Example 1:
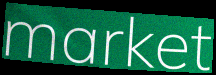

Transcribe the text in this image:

market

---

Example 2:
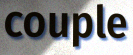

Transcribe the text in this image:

couple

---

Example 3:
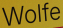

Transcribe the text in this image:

Wolfe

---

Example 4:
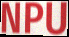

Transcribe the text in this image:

NPU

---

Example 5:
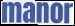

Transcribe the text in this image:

manor